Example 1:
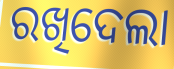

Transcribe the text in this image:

ରଖିଦେଲା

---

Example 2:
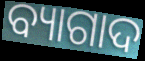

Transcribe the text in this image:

ବ୍ୟାଗାଦ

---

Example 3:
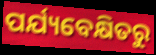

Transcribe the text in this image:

ପର୍ଯ୍ୟବେକ୍ଷିତରୁ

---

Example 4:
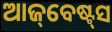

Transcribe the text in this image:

ଆଜ୍‌ବେଷ୍ଟ୍‌ସ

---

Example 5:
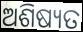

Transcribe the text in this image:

ଅଶିଷ୍ଯତ